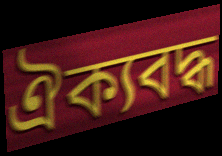
ঐক্যবদ্ধ